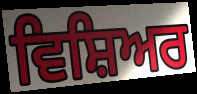
ਵਿਸ਼ਿਅਰ